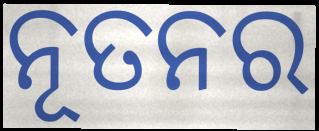
ନୂତନର